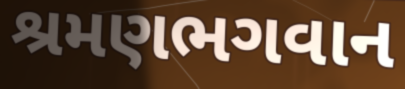
શ્રમણભગવાન